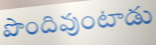
పొందివుంటాడు